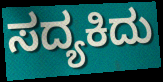
ಸದ್ಯಕಿದು